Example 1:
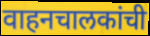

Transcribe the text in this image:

वाहनचालकांची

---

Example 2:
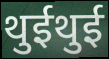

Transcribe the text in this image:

थुईथुई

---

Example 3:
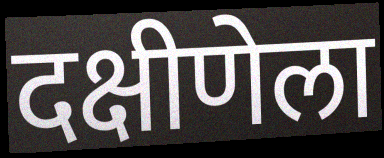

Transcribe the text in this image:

दक्षीणेला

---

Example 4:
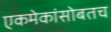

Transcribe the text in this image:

एकमेकांसोबतच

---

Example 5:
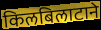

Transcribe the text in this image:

किलबिलाटाने